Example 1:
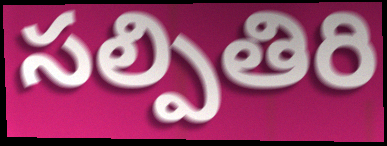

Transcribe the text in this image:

సల్పితిరి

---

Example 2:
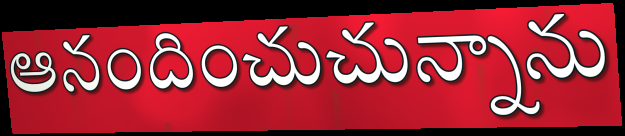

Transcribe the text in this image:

ఆనందించుచున్నాను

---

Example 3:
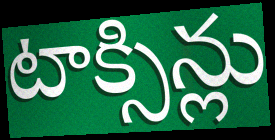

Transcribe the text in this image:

టాక్సిన్లు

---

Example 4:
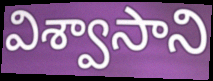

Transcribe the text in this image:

విశ్వాసాని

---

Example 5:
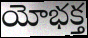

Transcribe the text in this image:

యోభక్త